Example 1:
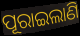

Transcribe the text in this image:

ପୂରାଇଲାଣି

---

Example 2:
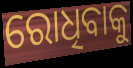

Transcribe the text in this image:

ରୋଧିବାକୁ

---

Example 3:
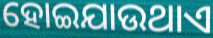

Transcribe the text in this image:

ହୋଇଯାଉଥାଏ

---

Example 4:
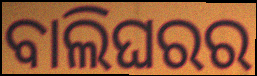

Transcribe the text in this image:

ବାଲିଘରର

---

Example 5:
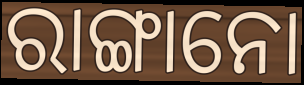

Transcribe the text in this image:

ରାଙ୍ଗାନୋ